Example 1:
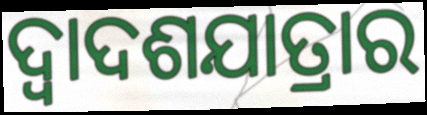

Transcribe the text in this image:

ଦ୍ୱାଦଶଯାତ୍ରାର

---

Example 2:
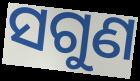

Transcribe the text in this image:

ସଗୁଣ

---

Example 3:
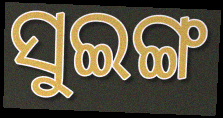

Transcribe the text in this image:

ସୁଇଙ୍ଗ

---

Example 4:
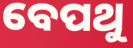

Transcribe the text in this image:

ବେପଥୁ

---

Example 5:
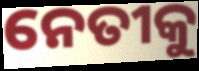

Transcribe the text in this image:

ନେତୀକୁ